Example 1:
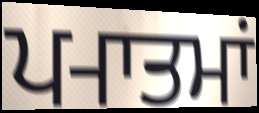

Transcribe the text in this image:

ਪ੍ਮਾਤਮਾਂ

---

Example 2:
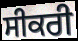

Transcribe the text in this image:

ਸੀਕਰੀ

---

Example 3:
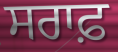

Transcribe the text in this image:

ਸਰਾਫ਼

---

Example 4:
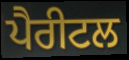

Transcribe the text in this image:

ਪੈਰੀਟਲ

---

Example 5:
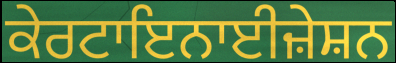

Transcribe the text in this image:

ਕੇਰਟਾਇਨਾਈਜ਼ੇਸ਼ਨ